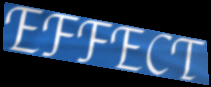
EFFECT